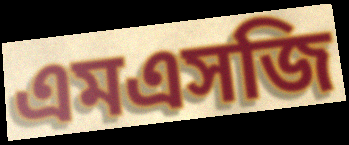
এমএসজি